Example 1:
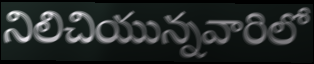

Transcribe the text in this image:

నిలిచియున్నవారిలో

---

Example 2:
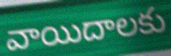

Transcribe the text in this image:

వాయిదాలకు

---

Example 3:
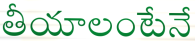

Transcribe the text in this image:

తీయాలంటేనే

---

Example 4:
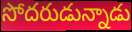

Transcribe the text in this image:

సోదరుడున్నాడు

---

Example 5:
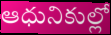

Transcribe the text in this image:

ఆధునికుల్లో